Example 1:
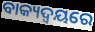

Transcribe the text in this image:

ବାକ୍ୟଦ୍ଵୟରେ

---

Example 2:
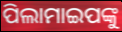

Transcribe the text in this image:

ପିଲାମାଇପଙ୍କୁ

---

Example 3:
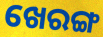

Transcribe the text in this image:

ଖେରଙ୍ଗ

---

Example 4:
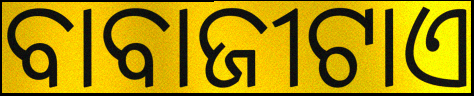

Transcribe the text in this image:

ବାବାଜୀଟାଏ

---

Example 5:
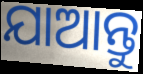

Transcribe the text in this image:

ଯାଆନ୍ତୁ